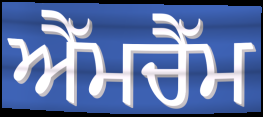
ਐੱਮਚੈੱਮ